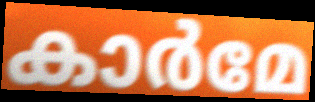
കാർമേ